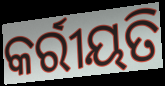
କର୍ରୀୟତି